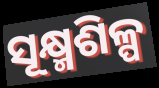
ସୂକ୍ଷ୍ମଶିଳ୍ପ